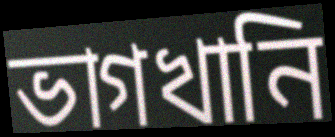
ভাগখানি